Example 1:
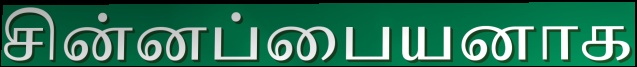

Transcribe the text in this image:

சின்னப்பையனாக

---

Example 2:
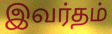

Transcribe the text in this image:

இவர்தம்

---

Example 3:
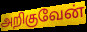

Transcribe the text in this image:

அறிகுவேன்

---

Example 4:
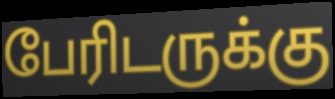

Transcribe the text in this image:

பேரிடருக்கு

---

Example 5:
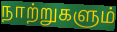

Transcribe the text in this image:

நாற்றுகளும்